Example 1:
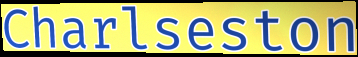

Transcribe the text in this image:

Charlseston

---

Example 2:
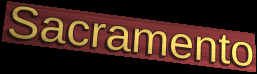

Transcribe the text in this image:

Sacramento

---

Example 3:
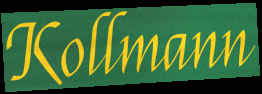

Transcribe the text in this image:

Kollmann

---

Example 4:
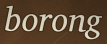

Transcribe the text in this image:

borong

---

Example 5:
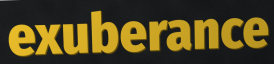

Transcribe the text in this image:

exuberance